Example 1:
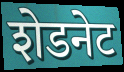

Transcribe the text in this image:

शेडनेट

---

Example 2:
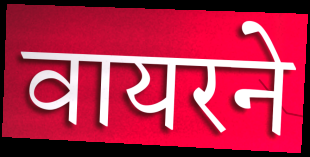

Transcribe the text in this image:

वायरने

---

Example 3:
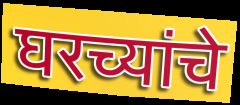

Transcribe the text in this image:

घरच्यांचे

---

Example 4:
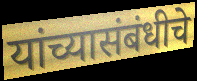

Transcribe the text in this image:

यांच्यासंबंधीचे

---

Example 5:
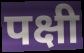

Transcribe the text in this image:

पक्षी